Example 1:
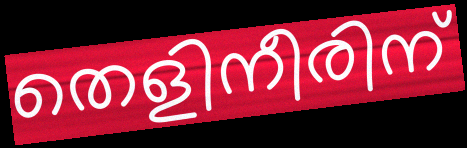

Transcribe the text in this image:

തെളിനീരിന്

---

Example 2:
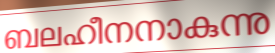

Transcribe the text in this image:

ബലഹീനനാകുന്നു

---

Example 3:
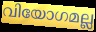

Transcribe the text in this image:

വിയോഗമല്ല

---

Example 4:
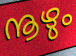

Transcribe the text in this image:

നൂഴും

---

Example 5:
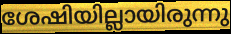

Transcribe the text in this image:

ശേഷിയില്ലായിരുന്നു